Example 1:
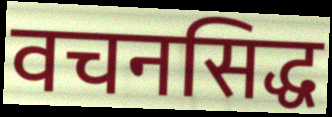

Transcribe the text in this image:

वचनसिद्ध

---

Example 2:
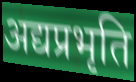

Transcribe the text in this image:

अद्यप्रभृति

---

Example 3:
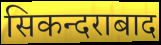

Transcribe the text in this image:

सिकन्दराबाद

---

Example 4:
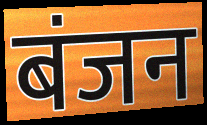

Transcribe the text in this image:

बंजन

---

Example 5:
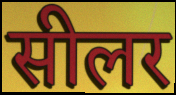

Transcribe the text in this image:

सीलर